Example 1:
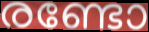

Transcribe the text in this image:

രണ്ടോ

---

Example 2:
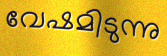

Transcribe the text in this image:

വേഷമിടുന്നു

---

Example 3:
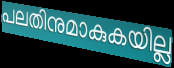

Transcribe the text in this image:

പലതിനുമാകുകയില്ല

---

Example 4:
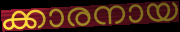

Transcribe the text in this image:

ക്കാരനായ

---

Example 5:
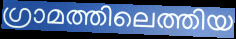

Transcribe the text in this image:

ഗ്രാമത്തിലെത്തിയ